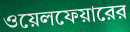
ওয়েলফেয়ারের